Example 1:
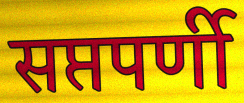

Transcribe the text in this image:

सप्तपर्णी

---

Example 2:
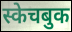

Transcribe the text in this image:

स्केचबुक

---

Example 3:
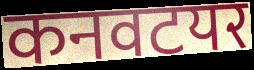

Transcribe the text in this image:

कनवटयर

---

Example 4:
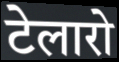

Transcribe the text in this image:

टेलारो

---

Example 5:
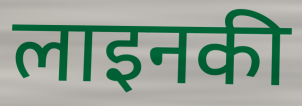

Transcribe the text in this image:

लाइनकी